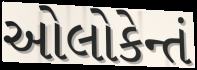
ઓલોકેન્તં